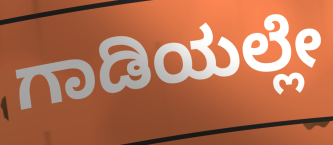
ಗಾಡಿಯಲ್ಲೇ